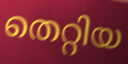
തെറ്റിയ